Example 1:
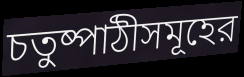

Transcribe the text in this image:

চতুষ্পাঠীসমূহের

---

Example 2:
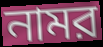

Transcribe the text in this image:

নামর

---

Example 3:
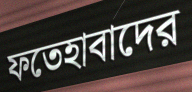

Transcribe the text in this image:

ফতেহাবাদের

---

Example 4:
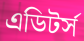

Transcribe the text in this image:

এডিটর্স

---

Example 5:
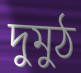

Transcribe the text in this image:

দুমুঠ